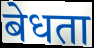
बेधता